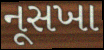
નૂસખા